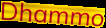
Dhammo